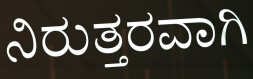
ನಿರುತ್ತರವಾಗಿ